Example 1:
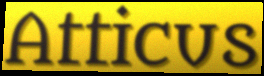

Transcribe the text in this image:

Atticus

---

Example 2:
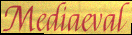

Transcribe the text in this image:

Mediaeval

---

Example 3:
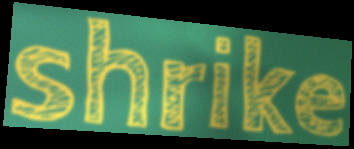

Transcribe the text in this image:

shrike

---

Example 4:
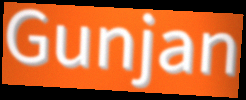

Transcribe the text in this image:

Gunjan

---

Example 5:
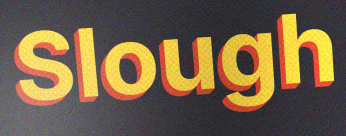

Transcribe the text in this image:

Slough